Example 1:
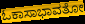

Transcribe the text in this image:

ಓಕಾಸಾಭಾವತೋ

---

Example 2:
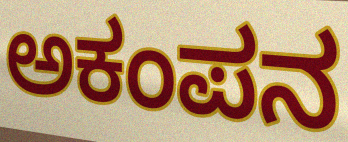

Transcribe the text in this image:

ಅಕಂಪನ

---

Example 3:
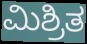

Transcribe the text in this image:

ಮಿಶ್ರಿತ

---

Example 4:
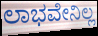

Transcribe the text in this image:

ಲಾಭವೇನಿಲ್ಲ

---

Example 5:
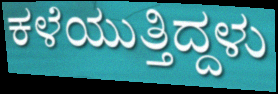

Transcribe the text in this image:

ಕಳೆಯುತ್ತಿದ್ದಳು